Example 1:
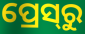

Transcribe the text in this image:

ପ୍ରେସ୍‍ରୁ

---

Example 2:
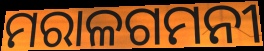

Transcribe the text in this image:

ମରାଳଗମନୀ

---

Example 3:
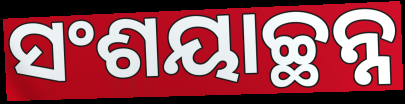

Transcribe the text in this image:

ସଂଶୟାଚ୍ଛନ୍ନ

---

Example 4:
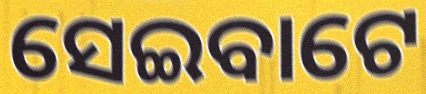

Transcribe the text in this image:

ସେଇବାଟେ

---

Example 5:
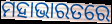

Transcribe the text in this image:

ମହାଭାରତରେ